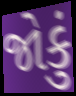
જોકું